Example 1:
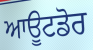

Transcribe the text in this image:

ਆਊਟਡੋਰ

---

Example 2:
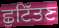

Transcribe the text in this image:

ਛੁਟਿੱਤਣ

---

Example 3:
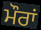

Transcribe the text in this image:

ਮੌਰਾਂ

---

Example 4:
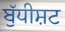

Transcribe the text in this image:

ਬੁੱਧੀਸ਼ਟ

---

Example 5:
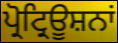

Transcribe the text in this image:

ਪ੍ਰੋਟ੍ਰਿਊਸ਼ਨਾਂ